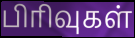
பிரிவுகள்